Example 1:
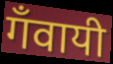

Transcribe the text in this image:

गँवायी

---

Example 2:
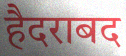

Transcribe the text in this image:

हैदराबद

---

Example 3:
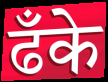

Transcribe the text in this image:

ढँके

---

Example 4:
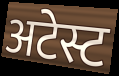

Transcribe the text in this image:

अटेस्ट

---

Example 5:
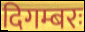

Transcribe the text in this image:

दिगम्बरः